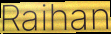
Raihan